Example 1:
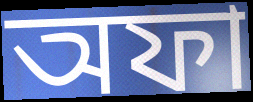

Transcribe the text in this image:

অফা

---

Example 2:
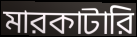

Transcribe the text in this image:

মারকাটারি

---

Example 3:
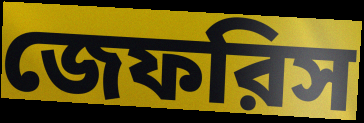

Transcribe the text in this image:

জেফরিস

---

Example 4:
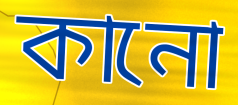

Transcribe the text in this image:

কানো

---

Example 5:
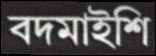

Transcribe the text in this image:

বদমাইশি